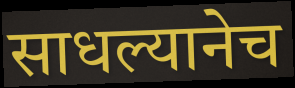
साधल्यानेच